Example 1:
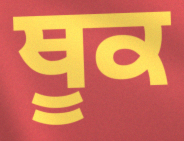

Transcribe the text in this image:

ਥੂਕ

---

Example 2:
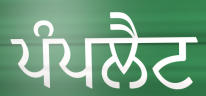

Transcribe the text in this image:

ਪੰਪਲੈਟ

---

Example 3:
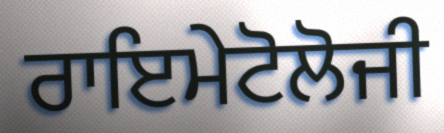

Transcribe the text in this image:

ਰਾਇਮੇਟੋਲੋਜੀ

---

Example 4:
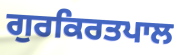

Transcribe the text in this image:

ਗੁਰਕਿਰਤਪਾਲ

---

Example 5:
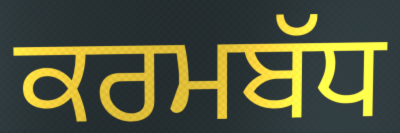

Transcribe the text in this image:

ਕਰਮਬੱਧ